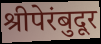
श्रीपेरंबुदूर